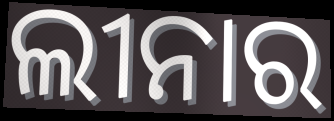
ଲୀନାର